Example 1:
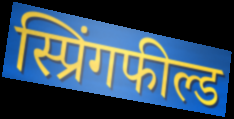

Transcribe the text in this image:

स्प्रिंगफील्ड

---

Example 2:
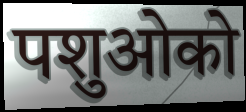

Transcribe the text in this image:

पशुओको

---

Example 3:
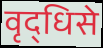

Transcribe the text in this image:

वृद्धिसे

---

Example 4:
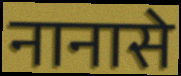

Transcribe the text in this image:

नानासे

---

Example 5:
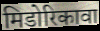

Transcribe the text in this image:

मिडोरिकावा